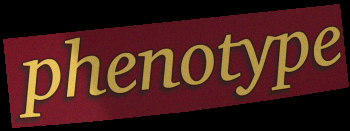
phenotype